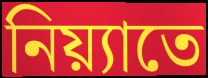
নিয়্যাতে